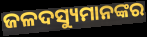
ଜଳଦସ୍ୟୁମାନଙ୍କର